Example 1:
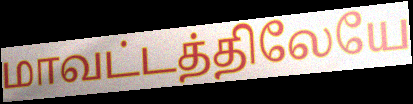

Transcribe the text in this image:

மாவட்டத்திலேயே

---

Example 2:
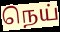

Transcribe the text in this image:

நெய்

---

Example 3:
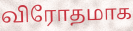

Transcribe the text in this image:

விரோதமாக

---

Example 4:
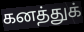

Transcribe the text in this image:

கனத்துக்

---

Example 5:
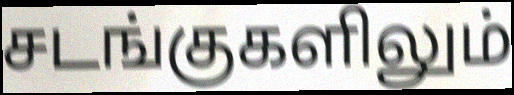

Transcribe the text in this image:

சடங்குகளிலும்